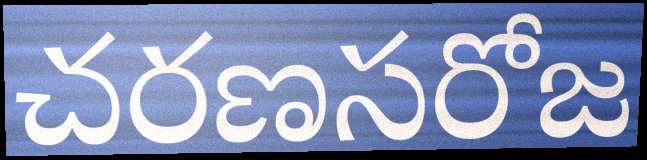
చరణసరోజ